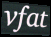
vfat